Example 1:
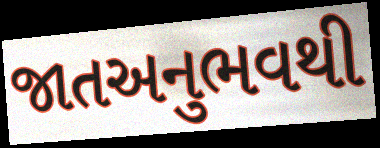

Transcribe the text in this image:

જાતઅનુભવથી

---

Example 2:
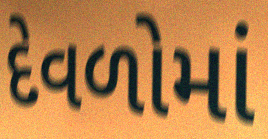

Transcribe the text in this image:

દેવળોમાં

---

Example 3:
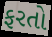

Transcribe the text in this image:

ફરતો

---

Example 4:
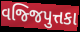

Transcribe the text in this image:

વજ્જિપુત્તકા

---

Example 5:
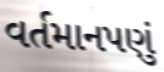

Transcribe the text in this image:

વર્તમાનપણું